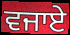
ਵਜਾਏ